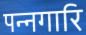
पन्नगारि